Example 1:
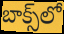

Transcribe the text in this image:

బాక్స్‌లో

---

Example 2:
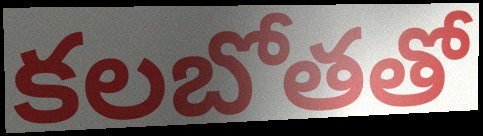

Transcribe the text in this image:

కలబోతతో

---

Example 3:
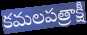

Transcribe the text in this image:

కమలపత్రాక్షీ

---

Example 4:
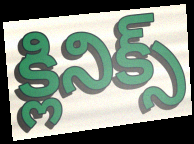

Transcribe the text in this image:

క్లినిక్స్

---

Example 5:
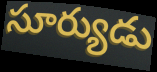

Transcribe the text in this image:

సూర్యుడు